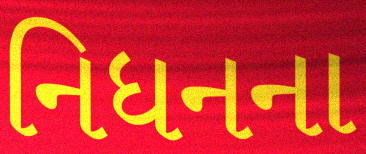
નિધનના